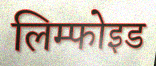
लिम्फोइड